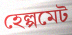
হেল্পমেট